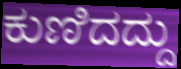
ಕುಣಿದದ್ದು